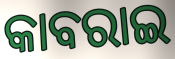
କାବରାଇ